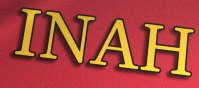
INAH